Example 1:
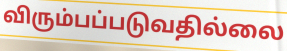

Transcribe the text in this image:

விரும்பப்படுவதில்லை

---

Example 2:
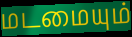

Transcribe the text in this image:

மடமையும்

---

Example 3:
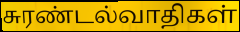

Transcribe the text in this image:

சுரண்டல்வாதிகள்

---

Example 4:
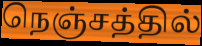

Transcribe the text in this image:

நெஞ்சத்தில்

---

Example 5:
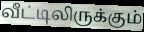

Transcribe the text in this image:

வீட்டிலிருக்கும்